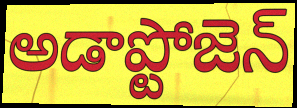
అడాప్టోజెన్